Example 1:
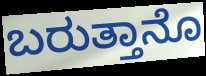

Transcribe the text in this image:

ಬರುತ್ತಾನೊ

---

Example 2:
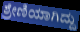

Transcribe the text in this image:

ಶ್ರೇಣಿಯಾಗಿದ್ದು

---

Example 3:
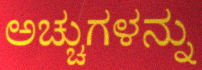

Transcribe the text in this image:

ಅಚ್ಚುಗಳನ್ನು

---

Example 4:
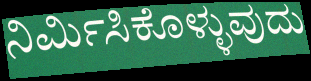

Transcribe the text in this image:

ನಿರ್ಮಿಸಿಕೊಳ್ಳುವುದು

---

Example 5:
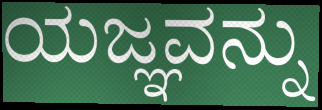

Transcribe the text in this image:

ಯಜ್ಞವನ್ನು